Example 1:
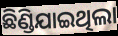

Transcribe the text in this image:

ଛିଣ୍ଡିଯାଇଥିଲା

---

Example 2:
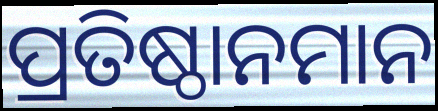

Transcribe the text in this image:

ପ୍ରତିଷ୍ଠାନମାନ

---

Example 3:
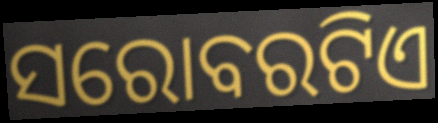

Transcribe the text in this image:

ସରୋବରଟିଏ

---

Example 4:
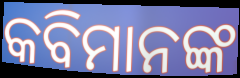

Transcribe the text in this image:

କବିମାନଙ୍କ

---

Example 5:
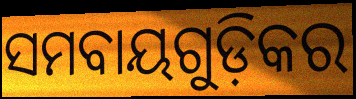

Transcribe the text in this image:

ସମବାୟଗୁଡ଼ିକର